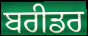
ਬਰੀਡਰ